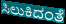
ಸಿಲುಕಿದಂತೆ